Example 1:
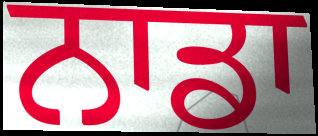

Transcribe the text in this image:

ਨਾਡਾ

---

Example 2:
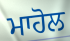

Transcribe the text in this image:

ਮਾਹੋਲ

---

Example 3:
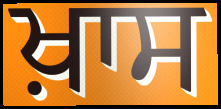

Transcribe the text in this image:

ਖ਼ਾਸ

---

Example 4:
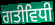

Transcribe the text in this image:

ਗਤੀਵਿਧੀ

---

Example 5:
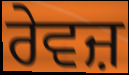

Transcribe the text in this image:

ਰੇਵਜ਼